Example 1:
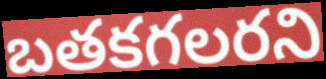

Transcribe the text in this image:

బతకగలరని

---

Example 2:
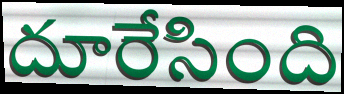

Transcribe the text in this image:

దూరేసింది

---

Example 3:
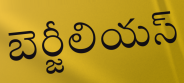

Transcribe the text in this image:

బెర్జీలియస్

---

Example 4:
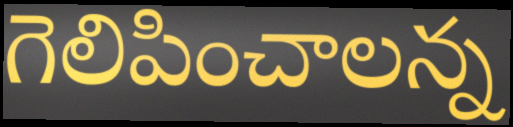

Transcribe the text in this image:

గెలిపించాలన్న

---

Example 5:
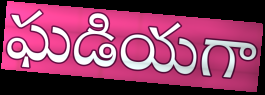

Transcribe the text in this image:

ఘడియగా